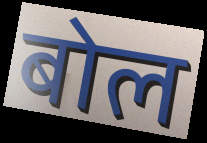
बोल